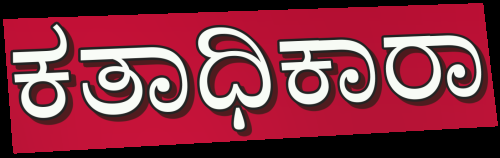
ಕತಾಧಿಕಾರಾ